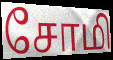
சோமி